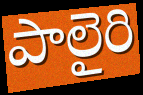
పాలైరి